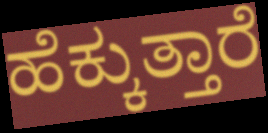
ಹೆಕ್ಕುತ್ತಾರೆ